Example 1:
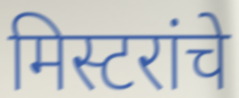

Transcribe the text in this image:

मिस्टरांचे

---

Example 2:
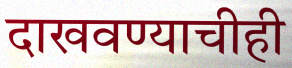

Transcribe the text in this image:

दाखवण्याचीही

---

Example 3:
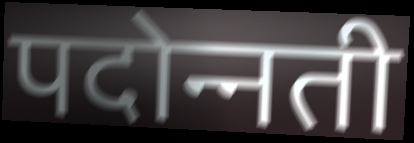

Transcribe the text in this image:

पदोन्‍नती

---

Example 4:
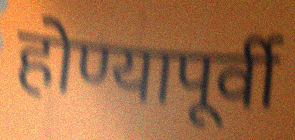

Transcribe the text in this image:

होण्यापूर्वी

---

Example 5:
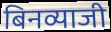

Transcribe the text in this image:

बिनव्याजी